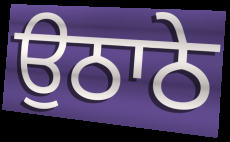
ਉਠਾਠੇ